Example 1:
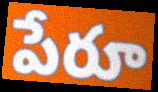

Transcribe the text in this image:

పేరూ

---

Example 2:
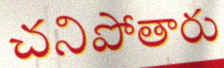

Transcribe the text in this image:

చనిపోతారు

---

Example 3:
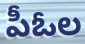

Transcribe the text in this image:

పీఓల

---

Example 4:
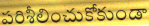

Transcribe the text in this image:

పరిశీలించుకోకుండా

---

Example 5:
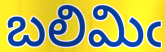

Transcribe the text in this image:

బలిమిఁ